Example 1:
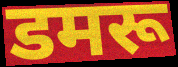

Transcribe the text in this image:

डमरू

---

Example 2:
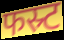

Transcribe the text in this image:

फस्र्ट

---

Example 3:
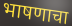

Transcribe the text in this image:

भाषणाचा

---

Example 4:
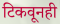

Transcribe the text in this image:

टिकवूनही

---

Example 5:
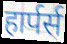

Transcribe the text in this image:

हार्पर्स